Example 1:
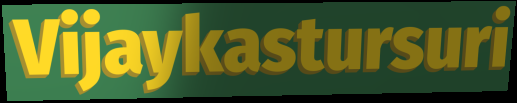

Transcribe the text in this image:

Vijaykastursuri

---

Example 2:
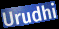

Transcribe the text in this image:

Urudhi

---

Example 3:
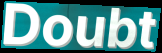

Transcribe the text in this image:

Doubt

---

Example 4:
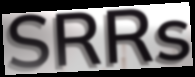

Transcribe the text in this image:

SRRs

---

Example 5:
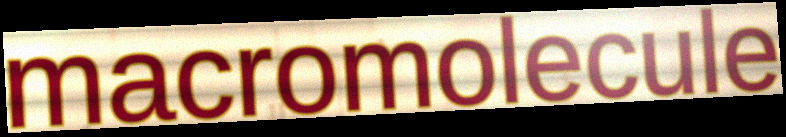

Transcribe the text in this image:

macromolecule